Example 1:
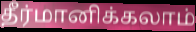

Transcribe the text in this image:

தீர்மானிக்கலாம்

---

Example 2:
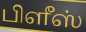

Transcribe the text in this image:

பிளீஸ்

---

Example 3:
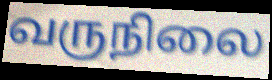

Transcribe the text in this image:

வருநிலை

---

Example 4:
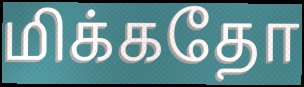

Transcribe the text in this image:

மிக்கதோ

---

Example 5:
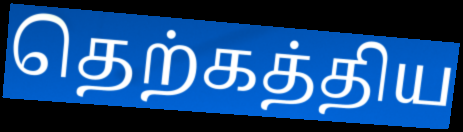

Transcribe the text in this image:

தெற்கத்திய